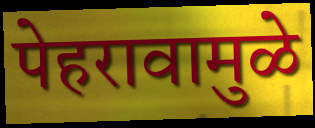
पेहरावामुळे